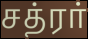
சத்ரர்